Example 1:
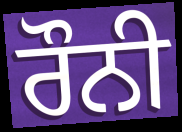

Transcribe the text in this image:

ਰੌਨੀ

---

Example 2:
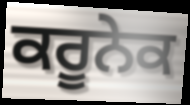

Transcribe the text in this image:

ਕਰੂਨੇਕ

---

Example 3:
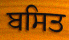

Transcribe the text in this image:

ਬਸਿਤ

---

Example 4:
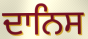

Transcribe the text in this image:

ਦਾਨਿਸ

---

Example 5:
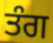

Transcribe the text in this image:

ਤੰਗ